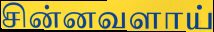
சின்னவளாய்